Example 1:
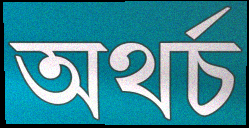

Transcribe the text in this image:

অথৰ্চ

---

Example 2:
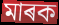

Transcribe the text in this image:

মাৰক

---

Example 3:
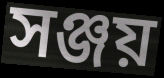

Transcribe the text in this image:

সঞ্জয়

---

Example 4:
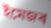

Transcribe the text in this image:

ইমেজৰ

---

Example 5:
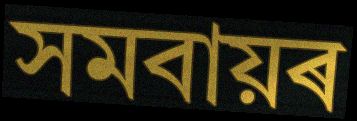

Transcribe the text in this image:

সমবায়ৰ